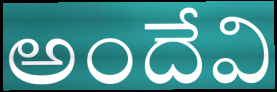
అందేవి